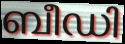
ബീഡി